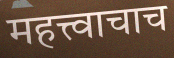
महत्त्वाचाच